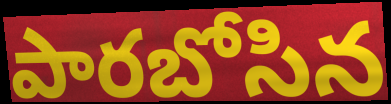
పారబోసిన